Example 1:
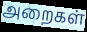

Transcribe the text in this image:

அறைகள்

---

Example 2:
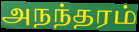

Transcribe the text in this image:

அநந்தரம்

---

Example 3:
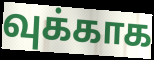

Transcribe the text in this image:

வுக்காக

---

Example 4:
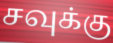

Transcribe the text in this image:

சவுக்கு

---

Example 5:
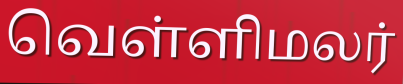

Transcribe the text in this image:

வெள்ளிமலர்